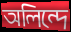
অলিন্দে